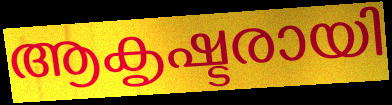
ആകൃഷ്ടരായി